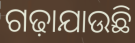
ଗଢ଼ାଯାଉଛି